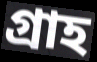
গ্রাহ